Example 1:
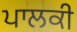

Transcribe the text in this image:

ਪਾਲਕੀ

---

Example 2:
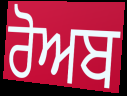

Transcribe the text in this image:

ਰੋਅਬ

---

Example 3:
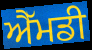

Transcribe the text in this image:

ਐੱਮਡੀ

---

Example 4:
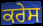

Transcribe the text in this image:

ਕਰੇਸ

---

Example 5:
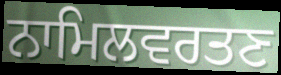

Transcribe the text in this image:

ਨਾਮਿਲਵਰਤਣ